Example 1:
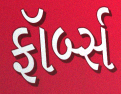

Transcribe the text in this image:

ફૉર્બ્સ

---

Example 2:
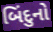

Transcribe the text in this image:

બિંદુનો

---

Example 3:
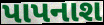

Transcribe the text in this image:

પાપનાશ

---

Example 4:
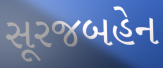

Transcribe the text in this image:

સૂરજબહેન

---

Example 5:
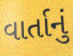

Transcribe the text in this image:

વાર્તાનું